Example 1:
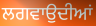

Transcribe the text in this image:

ਲਗਵਾਉਦੀਆਂ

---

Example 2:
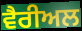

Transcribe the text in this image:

ਵੈਰੀਅਲ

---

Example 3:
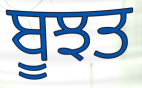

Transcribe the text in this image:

ਬੂਝਤ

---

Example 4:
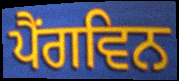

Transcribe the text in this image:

ਪੈਂਗਵਿਨ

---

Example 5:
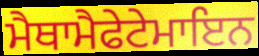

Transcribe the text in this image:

ਮੈਥਾਮੈਫੇਟੇਮਾਇਨ